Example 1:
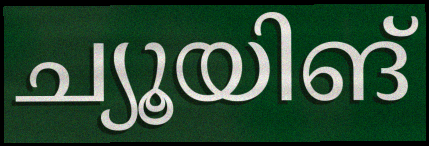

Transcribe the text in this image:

ച്യൂയിങ്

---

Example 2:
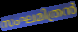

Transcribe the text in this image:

സംഘമിത്രൻ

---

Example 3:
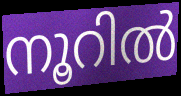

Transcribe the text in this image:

നൂറിൽ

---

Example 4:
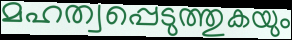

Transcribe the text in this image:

മഹത്വപ്പെടുത്തുകയും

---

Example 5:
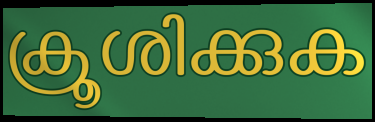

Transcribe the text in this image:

ക്രൂശിക്കുക